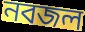
নবজল